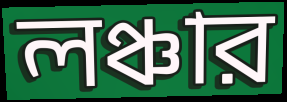
লঞ্চার